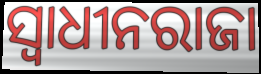
ସ୍ୱାଧୀନରାଜା